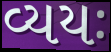
વ્યયઃ